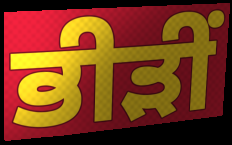
ਭੀੜੀਂ